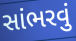
સાંભરવું